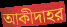
আকীদাহর